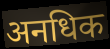
अनधिक